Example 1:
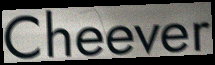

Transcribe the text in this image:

Cheever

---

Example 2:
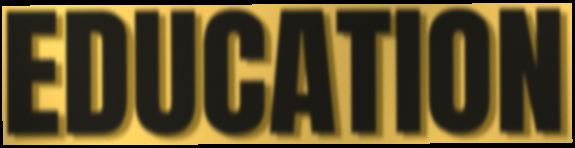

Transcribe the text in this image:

EDUCATION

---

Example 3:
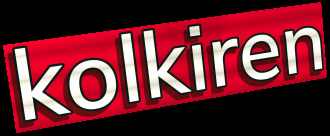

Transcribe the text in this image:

kolkiren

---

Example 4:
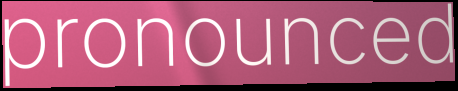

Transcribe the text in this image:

pronounced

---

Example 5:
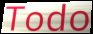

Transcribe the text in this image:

Todo